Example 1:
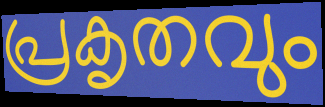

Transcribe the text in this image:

പ്രകൃതവും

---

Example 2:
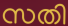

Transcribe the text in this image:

സതി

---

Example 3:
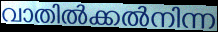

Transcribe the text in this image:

വാതിൽക്കൽനിന്ന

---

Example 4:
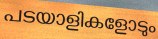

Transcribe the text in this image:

പടയാളികളോടും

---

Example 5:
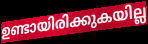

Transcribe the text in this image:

ഉണ്ടായിരിക്കുകയില്ല